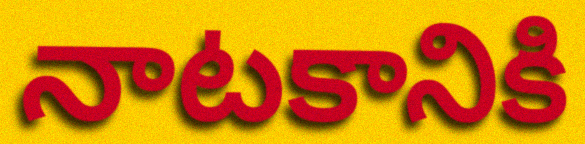
నాటకానికి